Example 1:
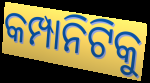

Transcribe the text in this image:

କମ୍ପାନିଟିକୁ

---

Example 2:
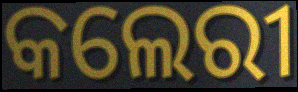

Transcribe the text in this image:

କଲେରୀ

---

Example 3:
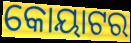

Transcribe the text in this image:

କୋୟାଟର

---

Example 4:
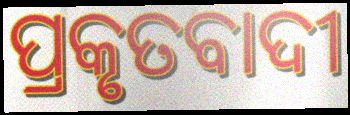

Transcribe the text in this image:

ପ୍ରକୃତବାଦୀ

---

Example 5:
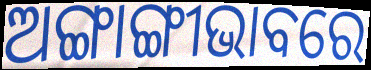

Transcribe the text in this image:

ଅଙ୍ଗାଙ୍ଗୀଭାବରେ